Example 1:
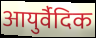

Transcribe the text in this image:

आयुर्वैदिक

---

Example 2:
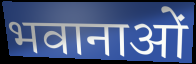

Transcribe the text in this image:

भवानाओं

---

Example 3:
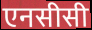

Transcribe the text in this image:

एनसीसी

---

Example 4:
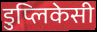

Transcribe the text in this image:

डुप्लिकेसी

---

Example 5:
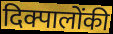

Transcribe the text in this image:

दिक्पालोंकी